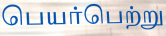
பெயர்பெற்று